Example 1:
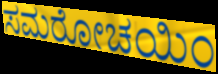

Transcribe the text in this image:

ಸಮರೋಚಯಿಂ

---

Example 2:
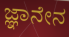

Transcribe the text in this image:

ಜ್ಞಾನೇನ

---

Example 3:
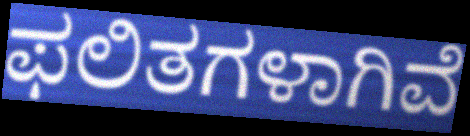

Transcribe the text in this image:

ಫಲಿತಗಳಾಗಿವೆ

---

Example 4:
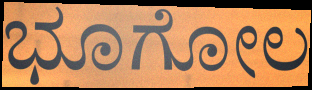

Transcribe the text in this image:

ಭೂಗೋಲ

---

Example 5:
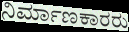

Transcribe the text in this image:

ನಿರ್ಮಾಣಕಾರರು